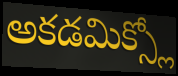
అకడమిక్స్లో